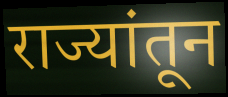
राज्यांतून